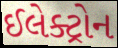
ઈલેક્ટ્રોન